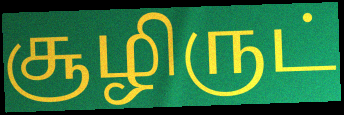
சூழிருட்